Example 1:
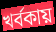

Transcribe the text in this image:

খর্বকায়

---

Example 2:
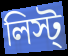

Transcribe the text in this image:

লিস্ট্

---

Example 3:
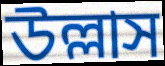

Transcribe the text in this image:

উল্লাস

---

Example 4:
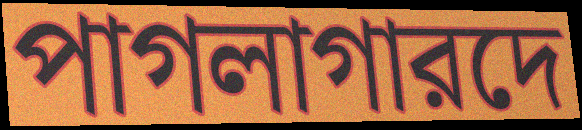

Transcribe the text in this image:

পাগলাগারদে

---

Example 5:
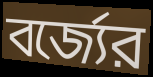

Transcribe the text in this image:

বর্জ্যের